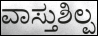
ವಾಸ್ತುಶಿಲ್ಪ